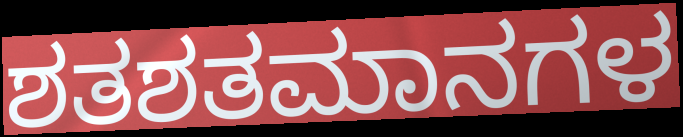
ಶತಶತಮಾನಗಳ